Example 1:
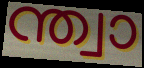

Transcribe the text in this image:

ന്ത്വാ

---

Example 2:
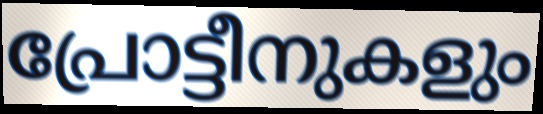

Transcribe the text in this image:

പ്രോട്ടീനുകളും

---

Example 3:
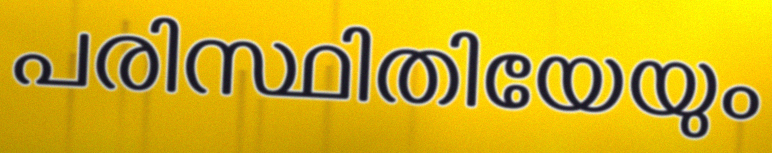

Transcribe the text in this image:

പരിസ്ഥിതിയേയും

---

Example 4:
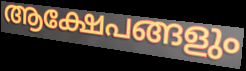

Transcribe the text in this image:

ആക്ഷേപങ്ങളും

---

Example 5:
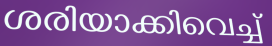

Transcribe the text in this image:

ശരിയാക്കിവെച്ച്